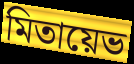
মিতায়েভ